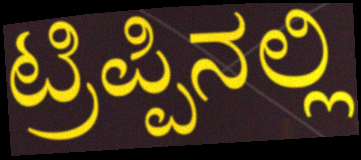
ಟ್ರಿಪ್ಪಿನಲ್ಲಿ